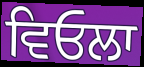
ਵਿਓਲਾ